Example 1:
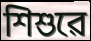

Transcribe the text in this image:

শিশুৱে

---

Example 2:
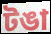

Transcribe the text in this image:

টঙা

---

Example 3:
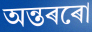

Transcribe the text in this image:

অন্তৰৰো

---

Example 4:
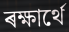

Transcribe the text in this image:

ৰক্ষাৰ্থে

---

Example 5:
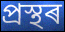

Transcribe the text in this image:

প্ৰস্থৰ